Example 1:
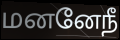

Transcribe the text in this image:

மனனேநீ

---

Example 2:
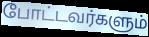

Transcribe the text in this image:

போட்டவர்களும்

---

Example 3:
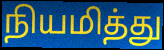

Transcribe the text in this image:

நியமித்து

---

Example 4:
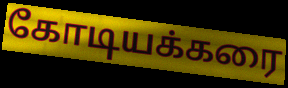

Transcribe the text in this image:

கோடியக்கரை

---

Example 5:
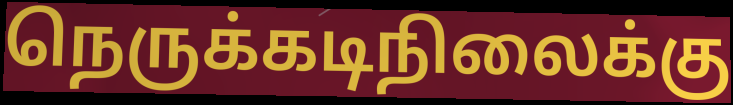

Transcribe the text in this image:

நெருக்கடிநிலைக்கு